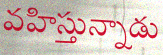
వహిస్తున్నాడు